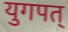
युगपत्